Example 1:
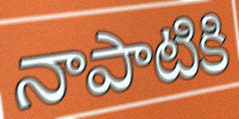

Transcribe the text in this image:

నాపాటికి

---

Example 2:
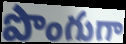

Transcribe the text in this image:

పొంగుగా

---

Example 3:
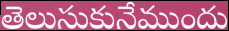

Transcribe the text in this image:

తెలుసుకునేముందు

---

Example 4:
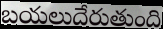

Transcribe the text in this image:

బయలుదేరుతుంది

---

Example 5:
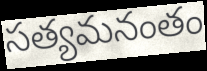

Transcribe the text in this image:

సత్యమనంతం